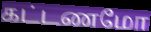
கட்டணமோ